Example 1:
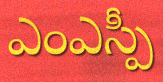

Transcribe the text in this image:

ఎంఎస్పీ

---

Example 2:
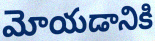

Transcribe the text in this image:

మోయడానికి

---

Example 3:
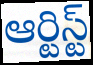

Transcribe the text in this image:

ఆర్టిస్ట్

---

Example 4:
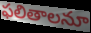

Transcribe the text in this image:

ఫలితాలనూ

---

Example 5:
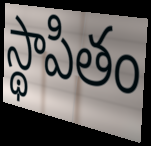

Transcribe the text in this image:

స్థాపితం